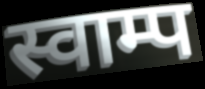
स्वाम्प